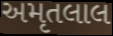
અમૃતલાલ